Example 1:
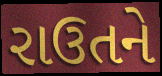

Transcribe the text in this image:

રાઉતને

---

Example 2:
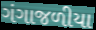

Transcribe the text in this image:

ગંગાજળીયા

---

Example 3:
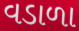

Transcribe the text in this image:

વડાળા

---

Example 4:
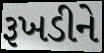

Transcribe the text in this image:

રૂખડીને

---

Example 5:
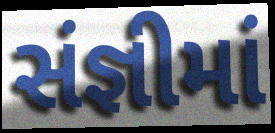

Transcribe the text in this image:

સંજ્ઞીમાં